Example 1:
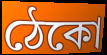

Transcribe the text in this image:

ঠেকো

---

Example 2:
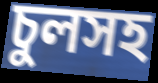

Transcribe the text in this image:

চুলসহ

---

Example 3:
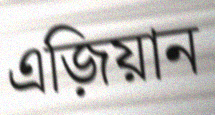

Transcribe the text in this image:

এজ়িয়ান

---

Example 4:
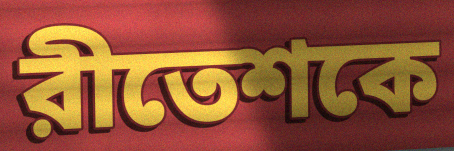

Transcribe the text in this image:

রীতেশকে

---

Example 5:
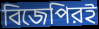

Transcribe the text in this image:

বিজেপিরই